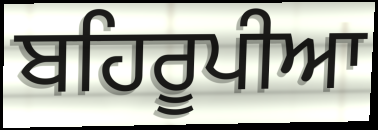
ਬਹਿਰੂਪੀਆ